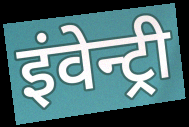
इंवेन्ट्री